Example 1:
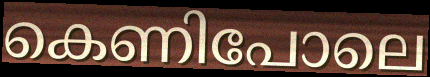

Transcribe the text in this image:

കെണിപോലെ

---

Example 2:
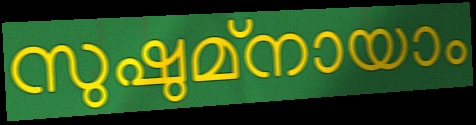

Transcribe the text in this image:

സുഷുമ്നായാം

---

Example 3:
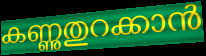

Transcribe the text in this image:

കണ്ണുതുറക്കാൻ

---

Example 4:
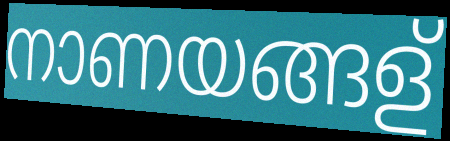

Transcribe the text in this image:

നാണയങ്ങള്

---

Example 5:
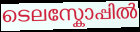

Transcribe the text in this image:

ടെലസ്കോപ്പിൽ